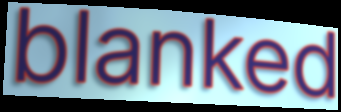
blanked